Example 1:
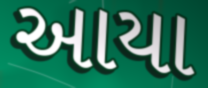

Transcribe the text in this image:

આયા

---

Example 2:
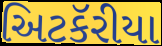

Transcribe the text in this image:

અિટકૅરીયા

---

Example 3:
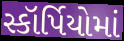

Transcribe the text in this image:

સ્કૉર્પિયોમાં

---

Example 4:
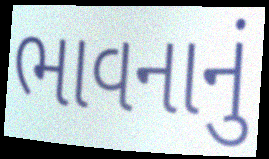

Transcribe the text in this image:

ભાવનાનું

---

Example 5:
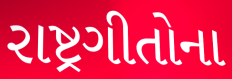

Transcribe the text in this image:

રાષ્ટ્રગીતોના